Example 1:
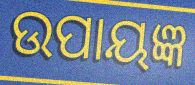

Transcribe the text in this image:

ଉପାୟଜ୍ଞ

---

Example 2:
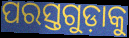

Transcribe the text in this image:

ପରସ୍ତଗୁଡ଼ାକୁ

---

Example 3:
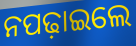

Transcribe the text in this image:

ନପଢ଼ାଇଲେ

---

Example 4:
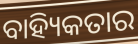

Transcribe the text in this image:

ବାହ୍ୟିକତାର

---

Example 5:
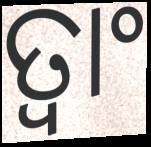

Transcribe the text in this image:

ତ୍ଵାଂ